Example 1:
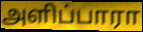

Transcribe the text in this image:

அளிப்பாரா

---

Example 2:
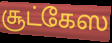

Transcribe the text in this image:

சூட்கேஸ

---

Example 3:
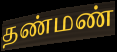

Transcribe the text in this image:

தண்மண்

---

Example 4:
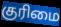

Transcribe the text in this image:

குரிமை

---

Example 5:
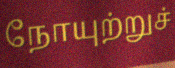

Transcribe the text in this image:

நோயுற்றுச்